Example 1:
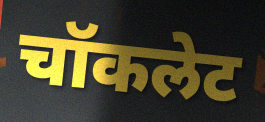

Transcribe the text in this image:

चॉकलेट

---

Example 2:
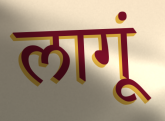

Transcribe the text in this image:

लागूं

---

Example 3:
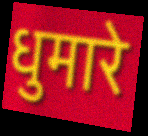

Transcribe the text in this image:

धुमारे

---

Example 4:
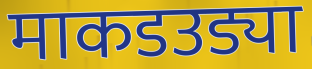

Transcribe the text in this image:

माकडउड्या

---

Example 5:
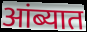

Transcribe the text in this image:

आंब्यात